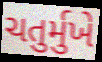
ચતુર્મુખે